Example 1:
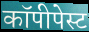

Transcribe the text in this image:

कॉपीपेस्ट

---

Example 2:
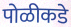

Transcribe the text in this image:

पोळीकडे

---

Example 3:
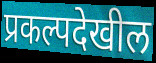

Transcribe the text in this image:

प्रकल्पदेखील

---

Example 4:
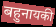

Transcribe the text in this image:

बहुनायकी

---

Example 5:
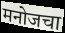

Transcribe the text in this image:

मनोजचा